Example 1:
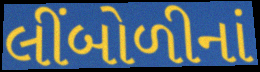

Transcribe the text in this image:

લીંબોળીનાં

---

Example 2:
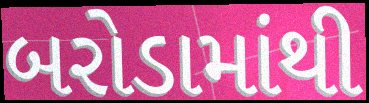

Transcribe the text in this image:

બરોડામાંથી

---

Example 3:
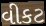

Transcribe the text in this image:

વીકટ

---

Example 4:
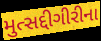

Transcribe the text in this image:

મુત્સદ્દીગીરીના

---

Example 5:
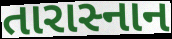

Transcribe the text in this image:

તારાસ્નાન